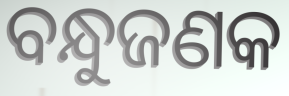
ବନ୍ଧୁଜଣକ